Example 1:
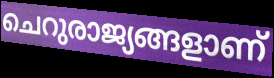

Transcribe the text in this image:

ചെറുരാജ്യങ്ങളാണ്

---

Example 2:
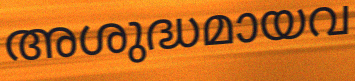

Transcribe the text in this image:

അശുദ്ധമായവ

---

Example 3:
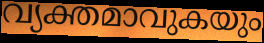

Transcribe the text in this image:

വ്യക്തമാവുകയും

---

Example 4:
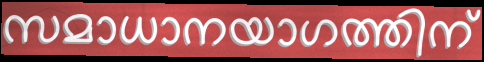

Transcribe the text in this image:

സമാധാനയാഗത്തിന്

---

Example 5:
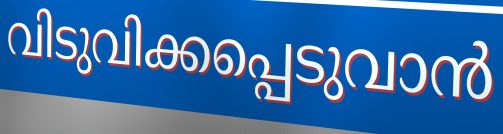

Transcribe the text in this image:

വിടുവിക്കപ്പെടുവാൻ